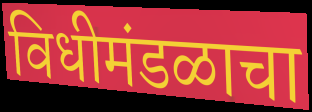
विधीमंडळाचा